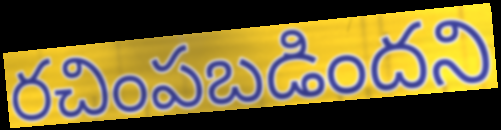
రచింపబడిందని